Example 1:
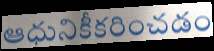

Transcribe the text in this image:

ఆధునికీకరించడం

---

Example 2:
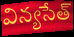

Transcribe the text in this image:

విన్యసేత్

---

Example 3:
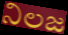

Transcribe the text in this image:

నిలజ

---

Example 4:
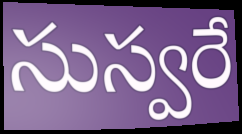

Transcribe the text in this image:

సుస్వరే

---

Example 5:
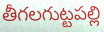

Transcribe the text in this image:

తీగలగుట్టపల్లి